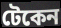
টেকেন